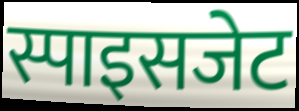
स्‍पाइसजेट